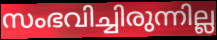
സംഭവിച്ചിരുന്നില്ല